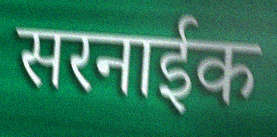
सरनाईक